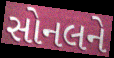
સોનલને